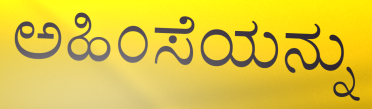
ಅಹಿಂಸೆಯನ್ನು